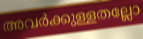
അവർക്കുള്ളതല്ലോ